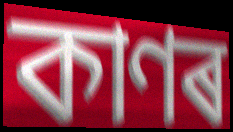
কাণৰ